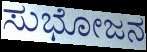
ಸುಭೋಜನ